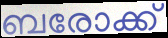
ബരോക്ക്